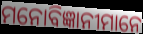
ମନୋବିଜ୍ଞାନୀମାନେ